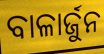
ବାଳାର୍ଜୁନ